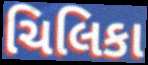
ચિલિકા